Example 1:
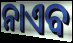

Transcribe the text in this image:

ନାଏବ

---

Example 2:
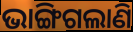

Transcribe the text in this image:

ଭାଙ୍ଗିଗଲାଣି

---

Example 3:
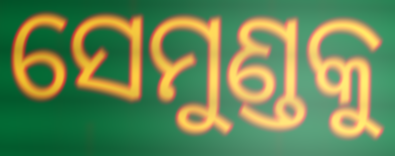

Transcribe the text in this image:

ସେମୁଣ୍ଡକୁ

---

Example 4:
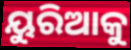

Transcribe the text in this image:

ୟୁରିଆକୁ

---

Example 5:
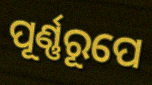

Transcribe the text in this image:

ପୂର୍ଣ୍ଣରୂପେ